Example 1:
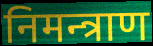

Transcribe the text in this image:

निमन्त्राण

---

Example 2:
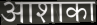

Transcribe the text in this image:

आशाका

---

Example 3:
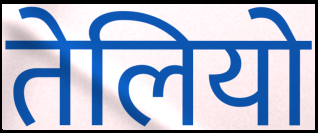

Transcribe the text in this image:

तेलियो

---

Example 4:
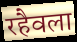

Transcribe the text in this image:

रहैवला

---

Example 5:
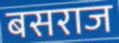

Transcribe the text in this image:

बसराज